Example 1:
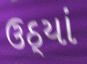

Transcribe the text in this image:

ઉઠ્યાં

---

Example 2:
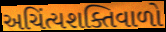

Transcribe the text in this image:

અચિંત્યશક્તિવાળો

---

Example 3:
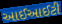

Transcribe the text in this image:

આઈઆઈટી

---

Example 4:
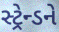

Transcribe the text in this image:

સ્ટ્રેન્ડને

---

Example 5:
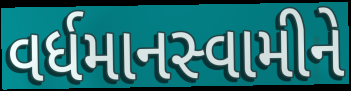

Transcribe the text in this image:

વર્ધમાનસ્વામીને